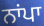
ਨਾਂਪਾ